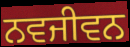
ਨਵਜੀਵਨ